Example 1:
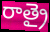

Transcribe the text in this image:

రాత్రై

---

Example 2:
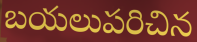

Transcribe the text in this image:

బయలుపరిచిన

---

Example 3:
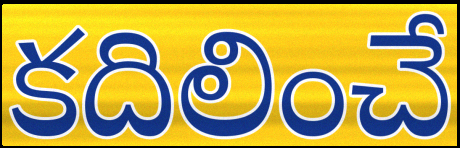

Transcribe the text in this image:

కదిలించే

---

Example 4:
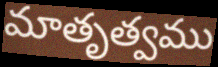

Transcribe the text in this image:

మాతృత్వము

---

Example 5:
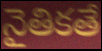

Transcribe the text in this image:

నైతికతే